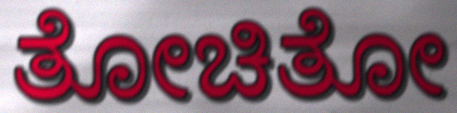
ತೋಚಿತೋ